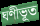
ঘণীভূত